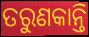
ତରୁଣକାନ୍ତି